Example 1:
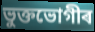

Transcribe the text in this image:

ভুক্তভোগীৰ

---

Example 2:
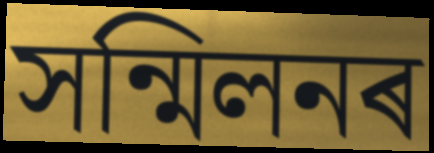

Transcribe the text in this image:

সন্মিলনৰ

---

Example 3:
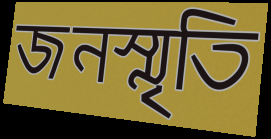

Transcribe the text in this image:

জনস্মৃতি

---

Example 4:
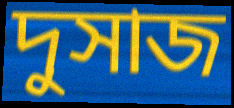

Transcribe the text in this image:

দুসাজ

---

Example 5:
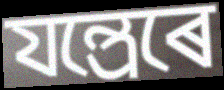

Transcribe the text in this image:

যন্ত্ৰেৰে